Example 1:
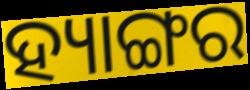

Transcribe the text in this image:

ହ୍ୟାଙ୍ଗର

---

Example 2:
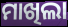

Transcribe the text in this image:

ମାଖିଲା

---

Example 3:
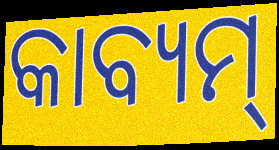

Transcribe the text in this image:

କାବ୍ୟମ୍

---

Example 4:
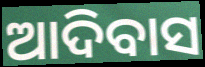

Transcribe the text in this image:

ଆଦିବାସ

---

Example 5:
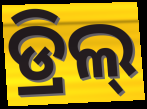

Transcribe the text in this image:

ଡ୍ରିଲ୍